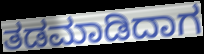
ತಡಮಾಡಿದಾಗ